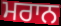
ਮਰਾਨ